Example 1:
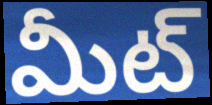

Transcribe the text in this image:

మీట్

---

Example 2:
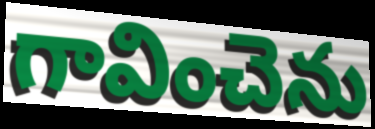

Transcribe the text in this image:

గావించెను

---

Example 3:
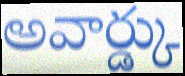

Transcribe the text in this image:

అవార్డ్కు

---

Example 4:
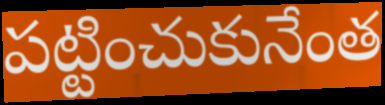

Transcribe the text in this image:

పట్టించుకునేంత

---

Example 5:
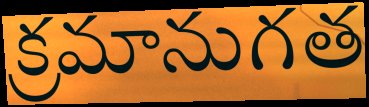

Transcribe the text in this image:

క్రమానుగత